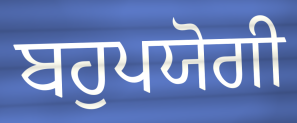
ਬਹੁਪਯੋਗੀ